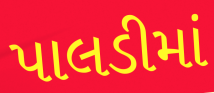
પાલડીમાં